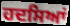
ਹਦਸਿਆਂ